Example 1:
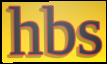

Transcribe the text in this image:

hbs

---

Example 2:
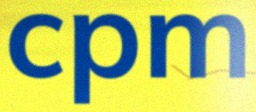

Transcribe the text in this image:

cpm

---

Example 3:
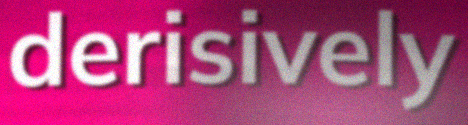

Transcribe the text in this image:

derisively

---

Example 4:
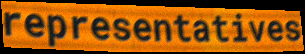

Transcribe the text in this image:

representatives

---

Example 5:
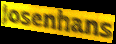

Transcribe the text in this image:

Josenhans